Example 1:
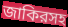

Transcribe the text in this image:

জাকিরসহ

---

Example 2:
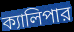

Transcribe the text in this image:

ক্যালিপার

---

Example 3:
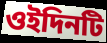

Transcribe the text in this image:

ওইদিনটি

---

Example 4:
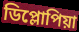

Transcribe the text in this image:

ডিপ্লোপিয়া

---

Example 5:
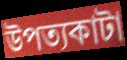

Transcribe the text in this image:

উপত্যকাটা